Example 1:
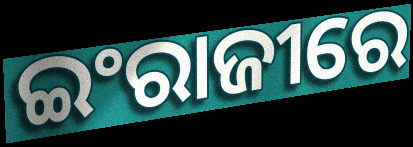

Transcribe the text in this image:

ଇଂରାଜୀରେ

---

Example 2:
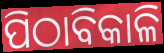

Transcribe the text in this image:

ପିଠାବିକାଳି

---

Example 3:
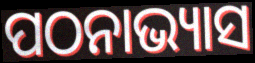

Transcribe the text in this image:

ପଠନାଭ୍ୟାସ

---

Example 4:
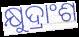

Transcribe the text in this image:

କ୍ଷୁଦ୍ରାଂଶ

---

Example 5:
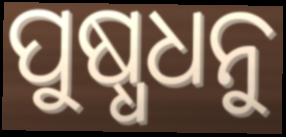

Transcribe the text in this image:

ପୁଷ୍ଧଧନୁ